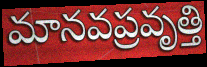
మానవప్రవృత్తి